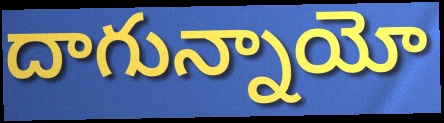
దాగున్నాయో